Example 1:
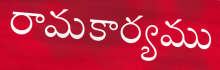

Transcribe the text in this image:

రామకార్యము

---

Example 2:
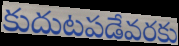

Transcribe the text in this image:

కుదుటపడేవరకు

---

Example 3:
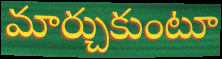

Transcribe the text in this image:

మార్చుకుంటూ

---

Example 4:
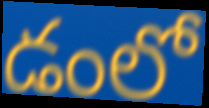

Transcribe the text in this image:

డంలో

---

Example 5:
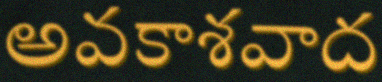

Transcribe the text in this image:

అవకాశవాద